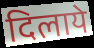
दिलाये